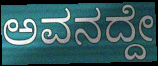
ಅವನದ್ದೇ